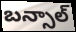
బన్సాల్